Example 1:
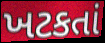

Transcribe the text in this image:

ખટકતાં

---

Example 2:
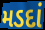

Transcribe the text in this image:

મડદાં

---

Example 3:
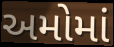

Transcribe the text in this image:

અમોમાં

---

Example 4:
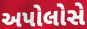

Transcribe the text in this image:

અપોલોસે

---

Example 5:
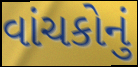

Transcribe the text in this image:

વાંચકોનું